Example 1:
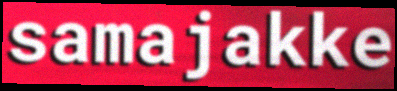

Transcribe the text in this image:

samajakke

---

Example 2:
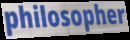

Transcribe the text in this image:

philosopher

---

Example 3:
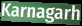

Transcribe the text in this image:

Karnagarh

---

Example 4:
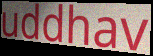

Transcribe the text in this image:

uddhav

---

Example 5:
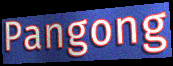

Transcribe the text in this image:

Pangong